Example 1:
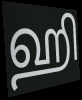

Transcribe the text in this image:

ஹி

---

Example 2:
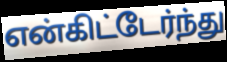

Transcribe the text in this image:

என்கிட்டேர்ந்து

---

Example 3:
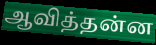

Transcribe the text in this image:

ஆவித்தன்ன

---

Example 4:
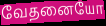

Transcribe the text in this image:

வேதனையோ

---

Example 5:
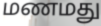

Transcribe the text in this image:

மணமது